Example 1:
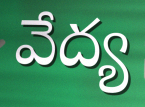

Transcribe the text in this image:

వేద్య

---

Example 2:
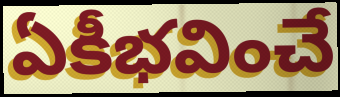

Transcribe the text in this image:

ఏకీభవించే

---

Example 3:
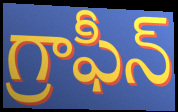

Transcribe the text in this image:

గ్రాఫీన్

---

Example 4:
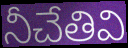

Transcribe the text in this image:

నీచేతివి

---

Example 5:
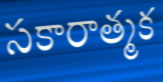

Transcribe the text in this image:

సకారాత్మక